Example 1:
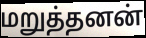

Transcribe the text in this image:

மறுத்தனன்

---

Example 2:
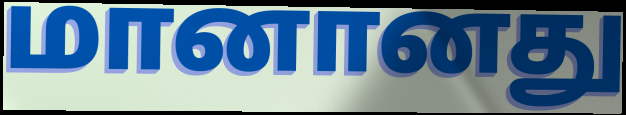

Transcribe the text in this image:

மானானது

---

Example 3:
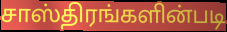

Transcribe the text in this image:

சாஸ்திரங்களின்படி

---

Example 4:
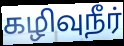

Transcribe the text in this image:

கழிவுநீர்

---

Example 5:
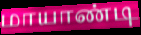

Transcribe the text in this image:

மாயாண்டி